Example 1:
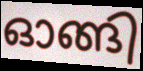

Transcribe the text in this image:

ഓങ്ങി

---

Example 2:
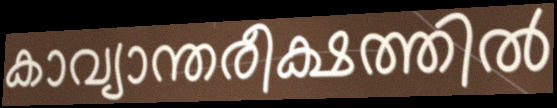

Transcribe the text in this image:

കാവ്യാന്തരീക്ഷത്തിൽ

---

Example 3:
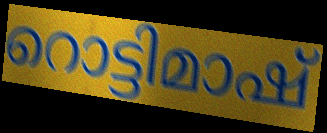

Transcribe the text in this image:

റൊട്ടിമാഷ്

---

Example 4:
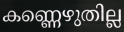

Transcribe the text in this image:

കണ്ണെഴുതില്ല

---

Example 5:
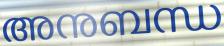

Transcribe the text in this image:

അനുബന്ധ